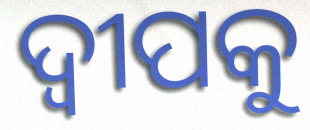
ଦ୍ୱୀପକୁ